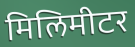
मिलिमीटर